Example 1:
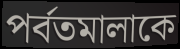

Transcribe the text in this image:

পর্বতমালাকে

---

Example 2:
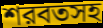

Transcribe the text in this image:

শরবতসহ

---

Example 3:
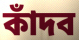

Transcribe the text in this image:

কাঁদব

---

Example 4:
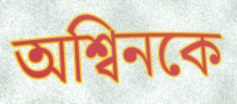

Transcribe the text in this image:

অশ্বিনকে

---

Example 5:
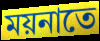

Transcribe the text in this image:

ময়নাতে